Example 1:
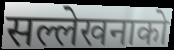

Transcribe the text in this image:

सल्लेखनाको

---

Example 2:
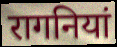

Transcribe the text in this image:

रागनियां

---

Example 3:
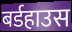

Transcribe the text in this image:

बर्डहाउस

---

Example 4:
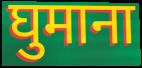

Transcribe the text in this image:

घुमाना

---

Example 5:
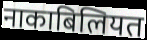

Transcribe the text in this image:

नाकाबिलियत